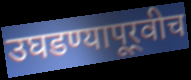
उघडण्यापूर्वीच